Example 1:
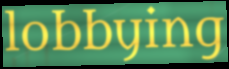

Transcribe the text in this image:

lobbying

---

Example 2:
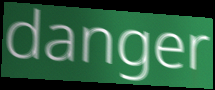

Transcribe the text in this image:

danger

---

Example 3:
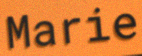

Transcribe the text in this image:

Marie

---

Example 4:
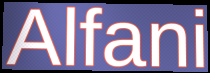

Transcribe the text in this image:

Alfani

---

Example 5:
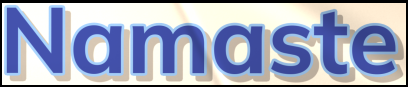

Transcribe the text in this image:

Namaste